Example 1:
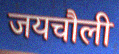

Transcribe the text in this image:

जयचौली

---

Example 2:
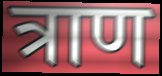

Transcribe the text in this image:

त्राण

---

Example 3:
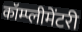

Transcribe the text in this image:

कॉम्प्लीमेंटरी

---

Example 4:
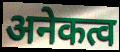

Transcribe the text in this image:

अनेकत्व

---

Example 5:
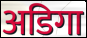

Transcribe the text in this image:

अडिगा